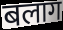
बलाग